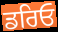
ਡਰਿਓ